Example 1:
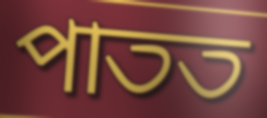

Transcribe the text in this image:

পাতত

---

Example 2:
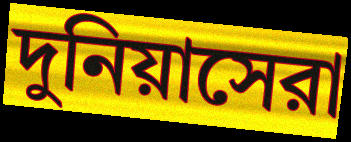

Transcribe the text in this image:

দুনিয়াসেরা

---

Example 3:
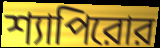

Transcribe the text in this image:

শ্যাপিরোর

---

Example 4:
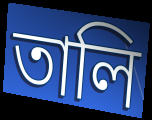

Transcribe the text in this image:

তালি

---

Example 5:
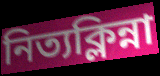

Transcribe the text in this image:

নিত্যক্লিন্না